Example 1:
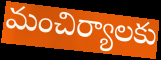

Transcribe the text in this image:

మంచిర్యాలకు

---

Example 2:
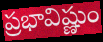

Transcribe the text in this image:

ప్రభావిష్ణుం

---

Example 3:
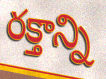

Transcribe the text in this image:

రక్తాన్ని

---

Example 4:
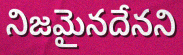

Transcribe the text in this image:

నిజమైనదేనని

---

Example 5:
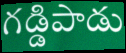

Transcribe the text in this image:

గడ్డిపాడు